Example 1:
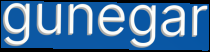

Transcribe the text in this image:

gunegar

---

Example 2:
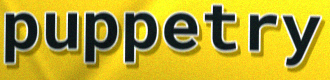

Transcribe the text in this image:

puppetry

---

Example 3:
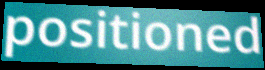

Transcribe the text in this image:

positioned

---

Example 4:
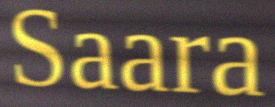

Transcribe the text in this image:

Saara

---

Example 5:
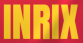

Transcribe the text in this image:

INRIX